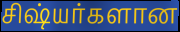
சிஷ்யர்களான